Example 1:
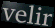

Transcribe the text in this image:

velir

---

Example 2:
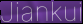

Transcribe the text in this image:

Jiankui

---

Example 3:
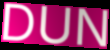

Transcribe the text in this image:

DUN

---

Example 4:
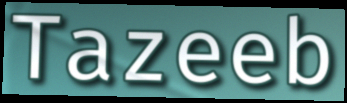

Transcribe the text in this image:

Tazeeb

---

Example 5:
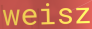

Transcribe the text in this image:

weisz